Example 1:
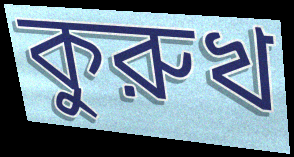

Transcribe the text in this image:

কুৰুখ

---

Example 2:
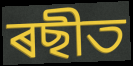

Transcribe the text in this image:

ৰছীত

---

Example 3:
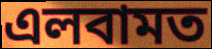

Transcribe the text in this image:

এলবামত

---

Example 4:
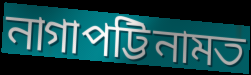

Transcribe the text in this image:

নাগাপট্টিনামত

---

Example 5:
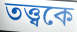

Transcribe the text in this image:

তত্ত্বকে